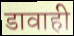
डावाही